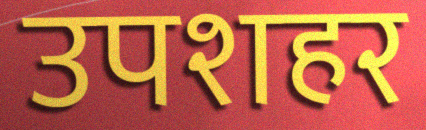
उपशहर